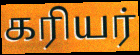
கரியர்